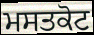
ਮਸਤਕੋਟ